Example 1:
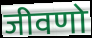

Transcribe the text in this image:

जीवणो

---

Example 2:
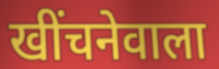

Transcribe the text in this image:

खींचनेवाला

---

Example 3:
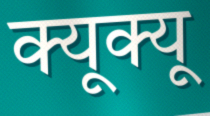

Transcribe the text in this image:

क्यूक्यू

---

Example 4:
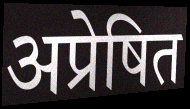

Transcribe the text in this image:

अप्रेषित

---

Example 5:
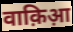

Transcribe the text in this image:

वाक़िआ़